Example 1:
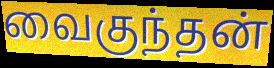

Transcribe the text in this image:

வைகுந்தன்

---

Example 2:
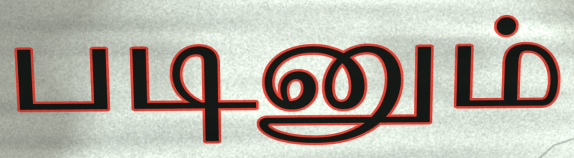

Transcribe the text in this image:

படினும்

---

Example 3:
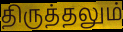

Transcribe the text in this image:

திருத்தலும்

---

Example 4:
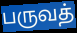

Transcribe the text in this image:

பருவத்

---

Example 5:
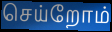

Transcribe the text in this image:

செய்றோம்